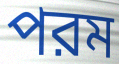
পরম